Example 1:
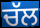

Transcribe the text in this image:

ਚੱਲ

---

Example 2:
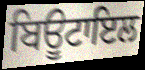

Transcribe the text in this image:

ਬਿਊਟਾਇਲ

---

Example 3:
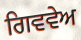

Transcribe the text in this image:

ਗਿਵਵੇਅ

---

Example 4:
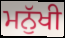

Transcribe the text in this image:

ਮਨੁੱਖੀ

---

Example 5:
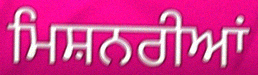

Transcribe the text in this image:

ਮਿਸ਼ਨਰੀਆਂ